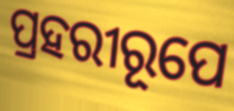
ପ୍ରହରୀରୂପେ